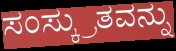
ಸಂಸ್ಕ್ರುತವನ್ನು